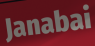
Janabai